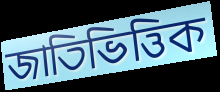
জাতিভিত্তিক